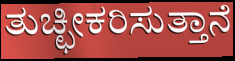
ತುಚ್ಛೀಕರಿಸುತ್ತಾನೆ